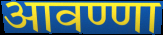
आवण्णा